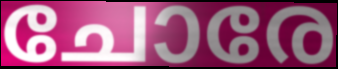
ചോരേ